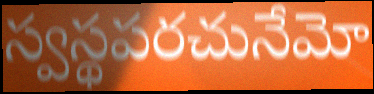
స్వస్థపరచునేమో